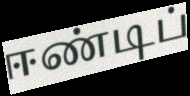
ஈண்டிப்